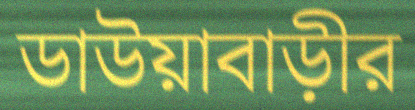
ডাউয়াবাড়ীর